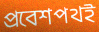
প্রবেশপথই